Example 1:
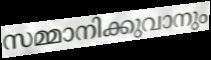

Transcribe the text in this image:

സമ്മാനിക്കുവാനും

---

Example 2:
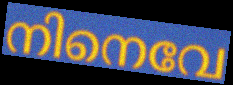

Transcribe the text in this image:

നിനെവേ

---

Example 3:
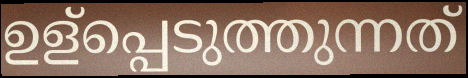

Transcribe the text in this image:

ഉള്പ്പെടുത്തുന്നത്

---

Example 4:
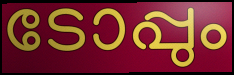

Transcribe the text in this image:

ടോപ്പും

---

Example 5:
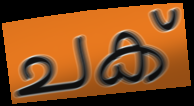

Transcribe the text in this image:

ചക്